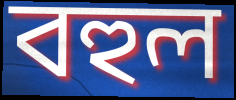
বহুল